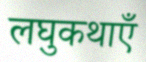
लघुकथाएँ